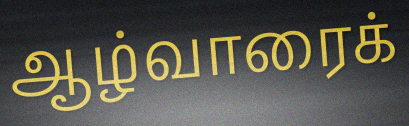
ஆழ்வாரைக்